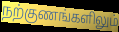
நற்குணங்களிலும்